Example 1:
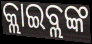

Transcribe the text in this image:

କ୍ଲାଇବ୍ଲଙ୍କ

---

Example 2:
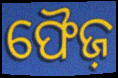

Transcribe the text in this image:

ଫୈଜ଼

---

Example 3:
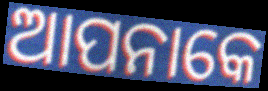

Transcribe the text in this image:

ଆପନାକେ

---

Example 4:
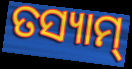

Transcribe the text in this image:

ତସ୍ୟାମ୍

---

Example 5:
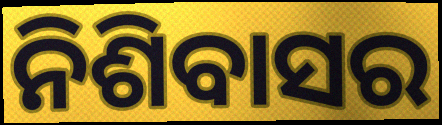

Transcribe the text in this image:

ନିଶିବାସର